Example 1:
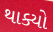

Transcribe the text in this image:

થાક્યો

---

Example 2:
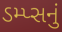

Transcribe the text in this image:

ડમ્પ્સનું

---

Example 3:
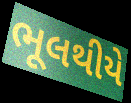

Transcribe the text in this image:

ભૂલથીયે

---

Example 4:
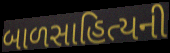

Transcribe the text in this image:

બાળસાહિત્યની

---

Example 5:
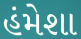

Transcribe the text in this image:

હંમેશા